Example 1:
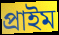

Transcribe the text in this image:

প্রাইম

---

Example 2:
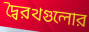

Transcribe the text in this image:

দ্বৈরথগুলোর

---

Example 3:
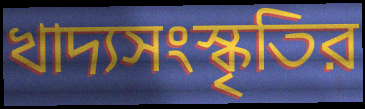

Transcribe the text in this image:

খাদ্যসংস্কৃতির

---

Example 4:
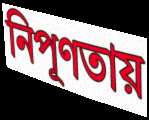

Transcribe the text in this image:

নিপূণতায়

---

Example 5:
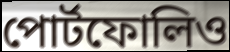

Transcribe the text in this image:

পোর্টফোলিও